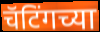
चॅटिंगच्या